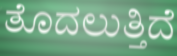
ತೊದಲುತ್ತಿದೆ